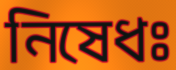
নিষেধঃ